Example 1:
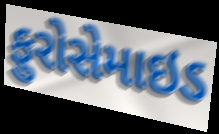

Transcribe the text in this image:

ફુરોસેમાઇડ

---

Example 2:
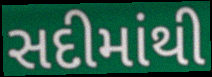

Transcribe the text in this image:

સદીમાંથી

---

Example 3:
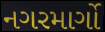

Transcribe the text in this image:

નગરમાર્ગો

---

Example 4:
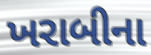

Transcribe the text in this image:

ખરાબીના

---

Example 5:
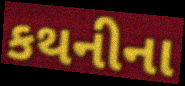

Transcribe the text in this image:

કથનીના